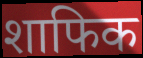
शाफिक